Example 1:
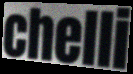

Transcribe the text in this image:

chelli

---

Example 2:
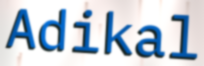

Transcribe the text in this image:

Adikal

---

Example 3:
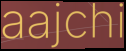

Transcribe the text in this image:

aajchi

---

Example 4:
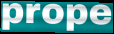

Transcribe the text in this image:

prope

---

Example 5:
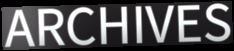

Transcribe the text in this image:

ARCHIVES